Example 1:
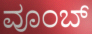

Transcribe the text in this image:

ವೂಂಬ್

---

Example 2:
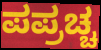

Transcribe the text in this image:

ಪಪ್ರಚ್ಚ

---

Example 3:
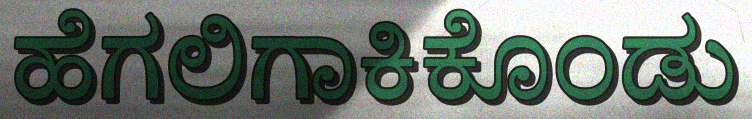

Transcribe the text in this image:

ಹೆಗಲಿಗಾಕಿಕೊಂಡು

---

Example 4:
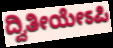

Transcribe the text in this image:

ದ್ವಿತೀಯೇಽಪಿ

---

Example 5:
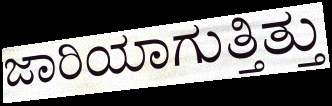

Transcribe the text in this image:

ಜಾರಿಯಾಗುತ್ತಿತ್ತು